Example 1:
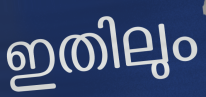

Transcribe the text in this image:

ഇതിലും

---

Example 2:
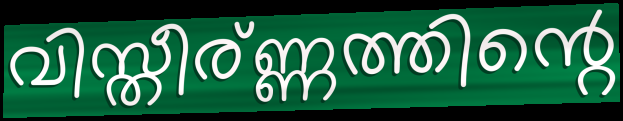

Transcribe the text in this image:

വിസ്തീര്ണ്ണത്തിന്റെ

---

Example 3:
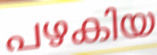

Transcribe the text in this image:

പഴകിയ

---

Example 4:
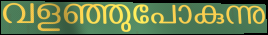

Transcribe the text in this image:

വളഞ്ഞുപോകുന്നു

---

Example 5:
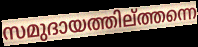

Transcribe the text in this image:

സമുദായത്തില്ത്തന്നെ